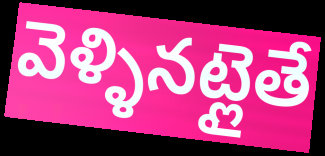
వెళ్ళినట్లైతే